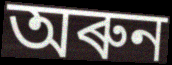
অৰুন